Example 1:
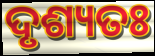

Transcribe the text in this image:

ଦୃଶ୍ୟତଃ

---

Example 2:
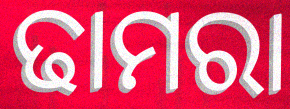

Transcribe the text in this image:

ଢାମରା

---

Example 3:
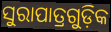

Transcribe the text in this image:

ସୁରାପାତ୍ରଗୁଡ଼ିକ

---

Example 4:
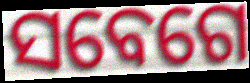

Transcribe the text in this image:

ସବେଗେ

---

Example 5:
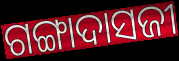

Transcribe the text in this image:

ଗଙ୍ଗାଦାସଜୀ